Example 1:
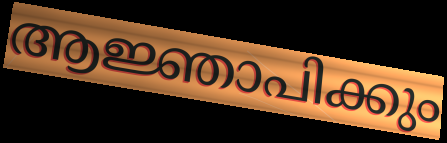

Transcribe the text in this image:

ആജ്ഞാപിക്കും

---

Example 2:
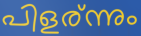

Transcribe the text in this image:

പിളര്ന്നും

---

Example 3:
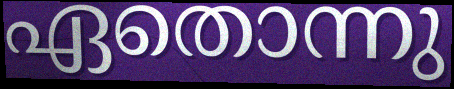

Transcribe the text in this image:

ഏതൊന്നു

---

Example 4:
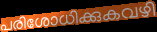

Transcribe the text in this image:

പരിശോധിക്കുകവഴി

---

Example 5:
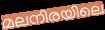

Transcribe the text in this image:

മലനിരയിലെ